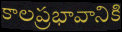
కాలప్రభావానికి